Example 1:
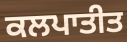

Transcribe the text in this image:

ਕਲਪਾਤੀਤ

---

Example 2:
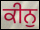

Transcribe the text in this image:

ਕੀਨੁ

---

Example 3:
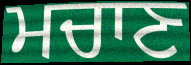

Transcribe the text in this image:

ਮਚਾਣ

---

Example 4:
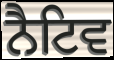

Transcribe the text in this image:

ਨੈਟਿਵ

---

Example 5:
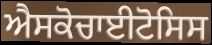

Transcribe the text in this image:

ਐਸਕੋਚਾਈਟੋਸਿਸ